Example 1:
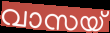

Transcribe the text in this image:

വാസയ്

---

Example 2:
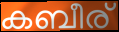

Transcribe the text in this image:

കബീര്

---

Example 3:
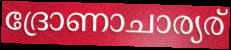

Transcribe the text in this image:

ദ്രോണാചാര്യര്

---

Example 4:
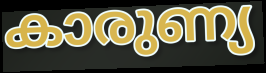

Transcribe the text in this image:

കാരുണ്യ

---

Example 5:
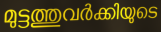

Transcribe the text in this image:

മുട്ടത്തുവർക്കിയുടെ